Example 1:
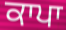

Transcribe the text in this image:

ਕਾਪਾ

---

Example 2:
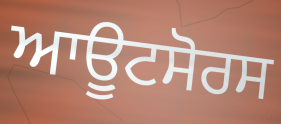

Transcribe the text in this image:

ਆਉੂਟਸੋਰਸ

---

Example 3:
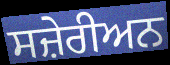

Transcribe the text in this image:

ਸਜ਼ੇਰੀਅਨ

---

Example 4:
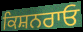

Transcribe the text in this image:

ਕਿਸ਼ਨਰਾਓ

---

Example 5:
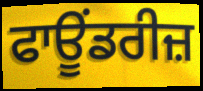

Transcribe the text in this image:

ਫਾਊਂਡਰੀਜ਼